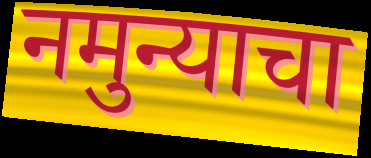
नमुन्याचा